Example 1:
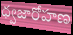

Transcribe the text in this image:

ధ్వజారోహణ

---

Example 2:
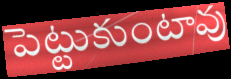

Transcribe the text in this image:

పెట్టుకుంటావు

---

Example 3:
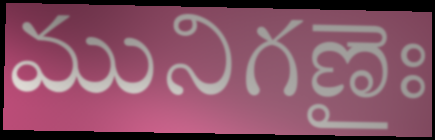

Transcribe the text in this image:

మునిగణైః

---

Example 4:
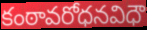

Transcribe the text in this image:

కంఠావరోధనవిధౌ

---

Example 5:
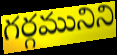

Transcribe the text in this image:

గర్గమునిని